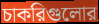
চাকরিগুলোর